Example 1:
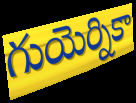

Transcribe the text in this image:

గుయెర్నికా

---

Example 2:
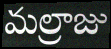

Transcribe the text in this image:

మల్రాజు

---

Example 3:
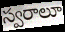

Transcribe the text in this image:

స్వరాలూ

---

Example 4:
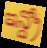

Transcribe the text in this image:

ఇన్ద్రో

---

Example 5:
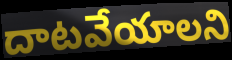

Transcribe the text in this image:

దాటవేయాలని